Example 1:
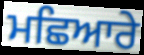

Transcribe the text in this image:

ਮਛਿਆਰੇ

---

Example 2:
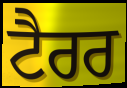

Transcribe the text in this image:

ਟੈਰਰ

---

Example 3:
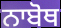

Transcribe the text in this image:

ਨਾਬੋਥ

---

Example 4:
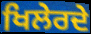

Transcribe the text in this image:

ਖਿਲੇਰਦੇ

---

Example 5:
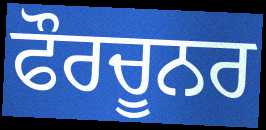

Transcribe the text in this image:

ਫੌਰਚੂਨਰ